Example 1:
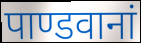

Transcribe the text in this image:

पाण्डवानां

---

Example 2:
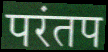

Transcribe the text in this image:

परंतप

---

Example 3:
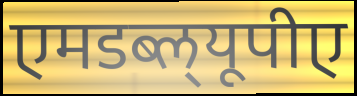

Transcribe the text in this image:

एमडब्ल्यूपीए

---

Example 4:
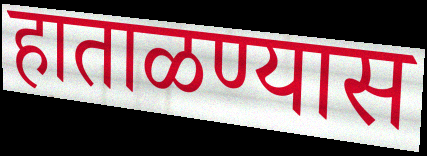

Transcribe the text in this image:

हाताळण्यास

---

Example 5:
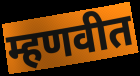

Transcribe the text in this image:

म्हणवीत